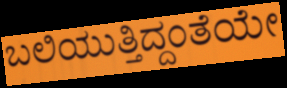
ಬಲಿಯುತ್ತಿದ್ದಂತೆಯೇ